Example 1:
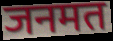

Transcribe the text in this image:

जनमत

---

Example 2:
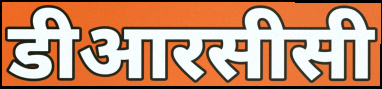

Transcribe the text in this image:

डीआरसीसी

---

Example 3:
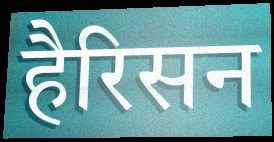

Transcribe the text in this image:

हैरिसन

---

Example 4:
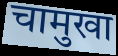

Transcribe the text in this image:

चामुखा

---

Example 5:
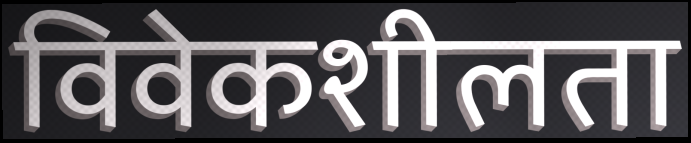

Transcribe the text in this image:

विवेकशीलता